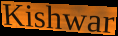
Kishwar